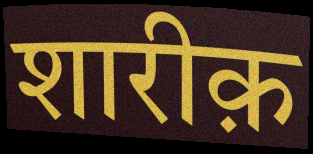
शारीक़